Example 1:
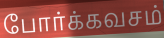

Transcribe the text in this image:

போர்க்கவசம்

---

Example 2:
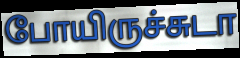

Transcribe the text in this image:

போயிருச்சுடா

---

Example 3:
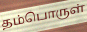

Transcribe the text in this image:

தம்பொருள்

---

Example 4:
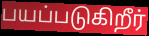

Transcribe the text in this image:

பயப்படுகிறீர்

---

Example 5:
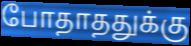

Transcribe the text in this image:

போதாததுக்கு